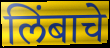
लिंबाचे